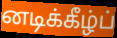
னடிக்கீழ்ப்